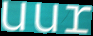
uur